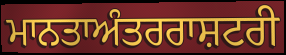
ਮਾਨਤਾਅੰਤਰਰਾਸ਼ਟਰੀ